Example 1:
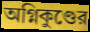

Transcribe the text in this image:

অগ্নিকুণ্ডের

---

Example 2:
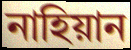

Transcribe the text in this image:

নাহিয়ান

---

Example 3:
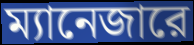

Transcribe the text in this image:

ম্যানেজারে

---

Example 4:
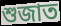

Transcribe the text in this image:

শুজাত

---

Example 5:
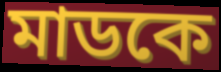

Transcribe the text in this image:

মাডকে